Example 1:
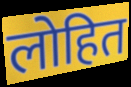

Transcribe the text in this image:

लोहित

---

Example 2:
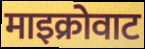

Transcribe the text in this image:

माइक्रोवाट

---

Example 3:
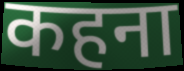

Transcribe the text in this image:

कहना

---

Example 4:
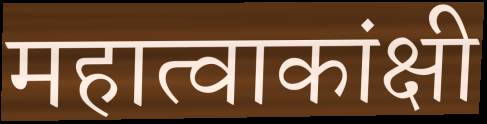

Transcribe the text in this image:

महात्वाकांक्षी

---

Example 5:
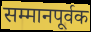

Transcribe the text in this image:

सम्मानपूर्वक